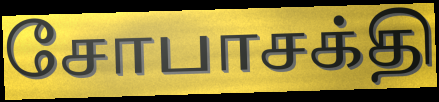
சோபாசக்தி